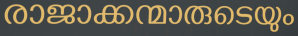
രാജാക്കന്മാരുടെയും